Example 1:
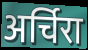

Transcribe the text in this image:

अर्चिरा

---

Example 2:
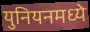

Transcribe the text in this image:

युनियनमध्ये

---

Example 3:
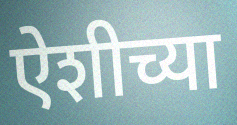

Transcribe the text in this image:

ऐशीच्या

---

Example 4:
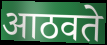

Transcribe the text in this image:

आठवते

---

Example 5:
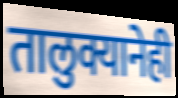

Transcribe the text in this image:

तालुक्यानेही